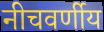
नीचवर्णीय